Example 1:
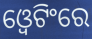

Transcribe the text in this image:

ଓ୍ୱେଟିଂରେ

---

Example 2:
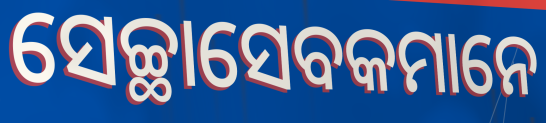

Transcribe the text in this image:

ସେଚ୍ଛାସେବକମାନେ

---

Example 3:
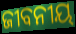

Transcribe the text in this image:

ଜୀବନୀୟ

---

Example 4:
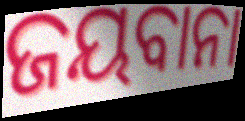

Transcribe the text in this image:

ଜୟବାନା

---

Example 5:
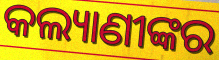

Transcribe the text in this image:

କଲ୍ୟାଣୀଙ୍କର